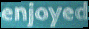
enjoyed